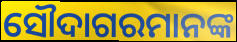
ସୌଦାଗରମାନଙ୍କ